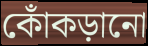
কোঁকড়ানো